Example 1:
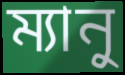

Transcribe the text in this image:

ম্যানু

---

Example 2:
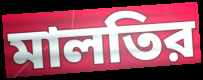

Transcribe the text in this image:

মালতির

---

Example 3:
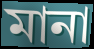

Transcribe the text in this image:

মানা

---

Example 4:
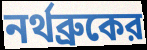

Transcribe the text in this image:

নর্থব্রুকের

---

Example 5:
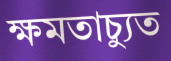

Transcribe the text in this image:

ক্ষমতাচ্যুত